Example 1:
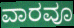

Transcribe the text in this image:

ವಾರವೂ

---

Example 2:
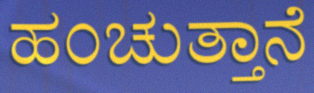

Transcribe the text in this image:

ಹಂಚುತ್ತಾನೆ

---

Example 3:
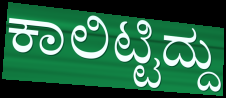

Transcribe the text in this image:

ಕಾಲಿಟ್ಟಿದ್ದು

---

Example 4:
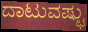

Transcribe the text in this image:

ದಾಟುವಷ್ಟು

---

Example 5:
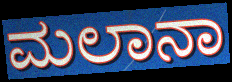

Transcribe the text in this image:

ಮಲಾನಾ